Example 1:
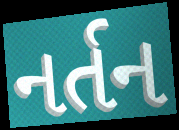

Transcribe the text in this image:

નર્તન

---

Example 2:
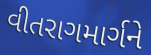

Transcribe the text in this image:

વીતરાગમાર્ગને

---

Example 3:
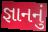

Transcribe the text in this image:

જ્ઞાનનું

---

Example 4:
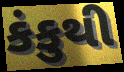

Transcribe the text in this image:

કંકુથી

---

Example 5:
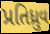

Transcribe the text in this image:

પ્રતિધ્રુવ